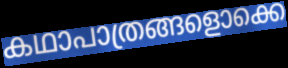
കഥാപാത്രങ്ങളൊക്കെ